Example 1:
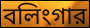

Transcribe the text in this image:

বলিংগার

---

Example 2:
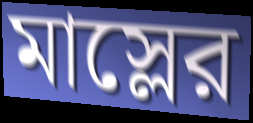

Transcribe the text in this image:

মাস্লের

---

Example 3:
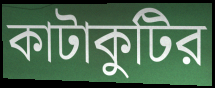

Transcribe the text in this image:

কাটাকুটির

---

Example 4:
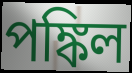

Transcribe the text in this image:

পঙ্কিল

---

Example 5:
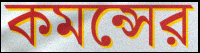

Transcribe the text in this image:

কমন্সের